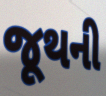
જૂથની